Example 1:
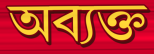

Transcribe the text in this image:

অব্যক্ত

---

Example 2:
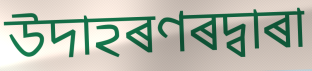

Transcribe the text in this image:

উদাহৰণৰদ্বাৰা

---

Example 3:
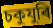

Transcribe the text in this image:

চকুযুৰি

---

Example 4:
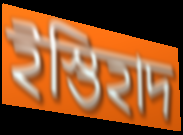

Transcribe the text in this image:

ইস্তিহাদ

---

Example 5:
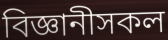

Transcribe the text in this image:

বিজ্ঞানীসকল